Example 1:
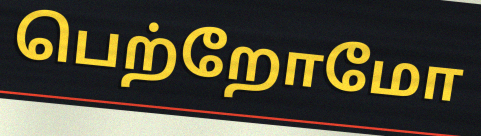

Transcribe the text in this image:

பெற்றோமோ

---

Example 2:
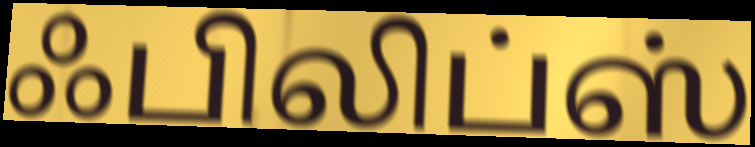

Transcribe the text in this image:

ஃபிலிப்ஸ்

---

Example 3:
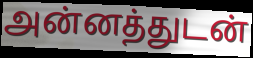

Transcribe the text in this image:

அன்னத்துடன்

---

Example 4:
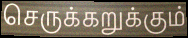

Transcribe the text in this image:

செருக்கறுக்கும்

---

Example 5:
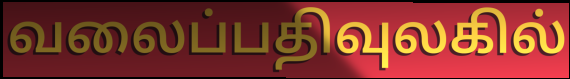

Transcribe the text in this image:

வலைப்பதிவுலகில்